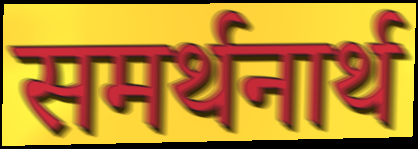
समर्थनार्थ